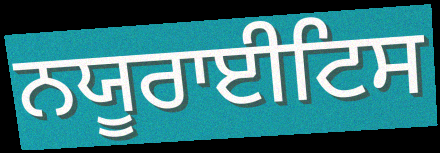
ਨਯੂਰਾਈਟਿਸ